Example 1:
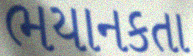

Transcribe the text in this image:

ભયાનકતા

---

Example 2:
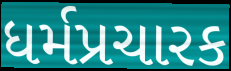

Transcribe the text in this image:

ધર્મપ્રચારક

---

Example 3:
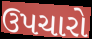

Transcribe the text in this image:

ઉપચારો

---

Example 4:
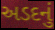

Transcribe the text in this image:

અડદનું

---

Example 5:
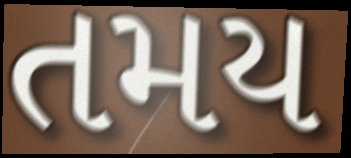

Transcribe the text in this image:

તમય